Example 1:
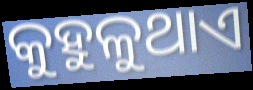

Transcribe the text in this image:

କୁହୁଳୁଥାଏ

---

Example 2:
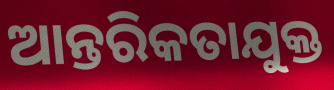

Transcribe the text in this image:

ଆନ୍ତରିକତାଯୁକ୍ତ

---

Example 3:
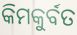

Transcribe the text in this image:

କିମକୁର୍ବତ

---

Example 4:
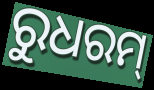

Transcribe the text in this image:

ରୁଧରମ୍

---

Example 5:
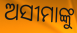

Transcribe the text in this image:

ଅସୀମାଙ୍କୁ